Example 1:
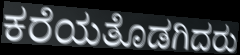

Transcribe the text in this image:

ಕರೆಯತೊಡಗಿದರು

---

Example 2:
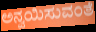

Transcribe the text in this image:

ಅನ್ವಯಿಸುವಂತೆ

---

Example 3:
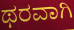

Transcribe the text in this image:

ಥರವಾಗಿ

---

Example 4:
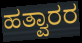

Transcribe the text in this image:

ಹತ್ವಾರರ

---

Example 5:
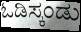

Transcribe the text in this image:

ಓಡಿಸ್ಕಂಡು